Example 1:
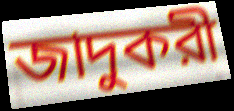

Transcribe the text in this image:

জাদুকরী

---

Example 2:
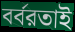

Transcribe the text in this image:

বর্বরতাই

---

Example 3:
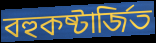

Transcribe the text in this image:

বহুকষ্টার্জিত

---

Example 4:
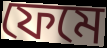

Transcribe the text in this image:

ফেমে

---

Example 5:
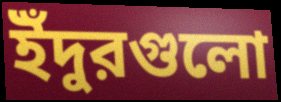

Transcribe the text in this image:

ইঁদুরগুলো